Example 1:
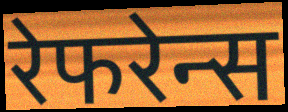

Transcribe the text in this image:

रेफरेन्स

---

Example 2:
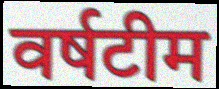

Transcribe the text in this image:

वर्षटीम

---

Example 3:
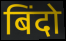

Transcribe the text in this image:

बिंदो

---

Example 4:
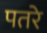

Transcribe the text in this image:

पतरे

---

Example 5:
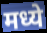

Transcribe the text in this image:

मध्ये